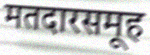
मतदारसमूह